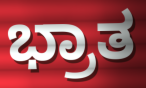
ಭ್ರಾತ